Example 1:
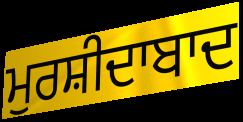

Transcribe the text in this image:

ਮੁਰਸ਼ੀਦਾਬਾਦ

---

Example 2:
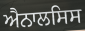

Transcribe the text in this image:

ਐਨਾਲਸਿਸ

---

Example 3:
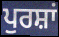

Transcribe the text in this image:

ਪੁਰਸ਼ਾਂ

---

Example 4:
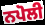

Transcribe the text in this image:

ਨਪੋਲੀ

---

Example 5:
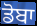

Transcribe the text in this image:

ਡੋਬਾ